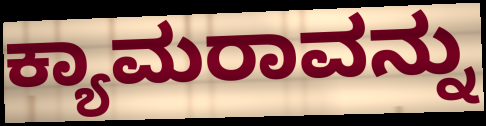
ಕ್ಯಾಮರಾವನ್ನು